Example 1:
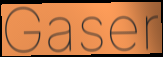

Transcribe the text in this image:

Gaser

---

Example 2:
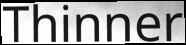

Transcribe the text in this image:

Thinner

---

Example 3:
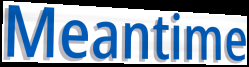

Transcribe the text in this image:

Meantime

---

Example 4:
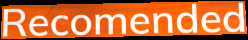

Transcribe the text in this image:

Recomended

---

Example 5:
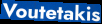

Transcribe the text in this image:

Voutetakis